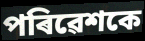
পৰিৱেশকে